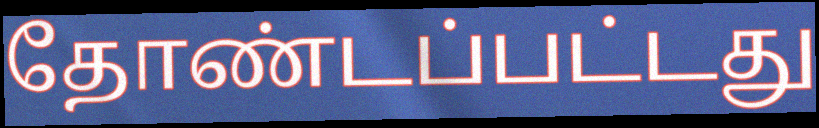
தோண்டப்பட்டது